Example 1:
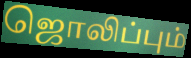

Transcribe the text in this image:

ஜொலிப்பும்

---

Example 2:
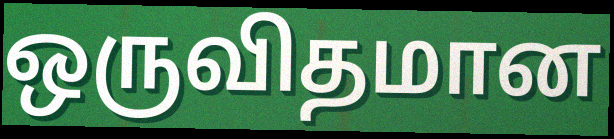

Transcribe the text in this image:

ஒருவிதமான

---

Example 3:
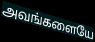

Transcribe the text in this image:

அவங்களையே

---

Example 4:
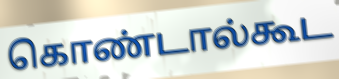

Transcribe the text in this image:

கொண்டால்கூட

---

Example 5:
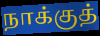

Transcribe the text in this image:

நாக்குத்